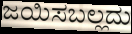
ಜಯಿಸಬಲ್ಲದು